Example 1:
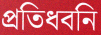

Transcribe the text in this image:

প্রতিধবনি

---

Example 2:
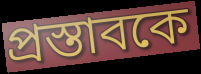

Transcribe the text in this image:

প্রস্তাবকে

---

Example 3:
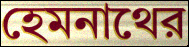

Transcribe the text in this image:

হেমনাথের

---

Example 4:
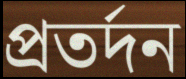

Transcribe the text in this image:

প্রতর্দন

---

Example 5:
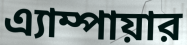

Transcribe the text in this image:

এ্যাম্পায়ার